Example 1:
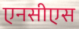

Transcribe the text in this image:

एनसीएस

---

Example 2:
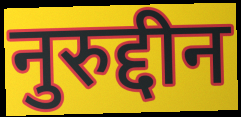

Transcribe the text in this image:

नुरुद्दीन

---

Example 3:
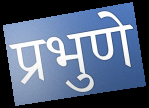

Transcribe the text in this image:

प्रभुणे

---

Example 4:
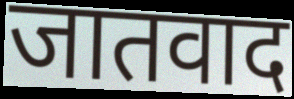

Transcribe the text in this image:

जातवाद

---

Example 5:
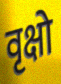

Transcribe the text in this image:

वृक्षो